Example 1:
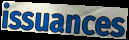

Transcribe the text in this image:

issuances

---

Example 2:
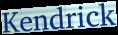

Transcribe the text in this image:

Kendrick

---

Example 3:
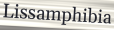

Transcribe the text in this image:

Lissamphibia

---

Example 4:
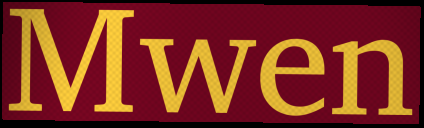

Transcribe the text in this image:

Mwen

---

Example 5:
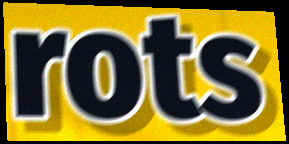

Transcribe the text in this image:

rots